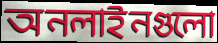
অনলাইনগুলো